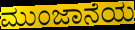
ಮುಂಜಾನೆಯ